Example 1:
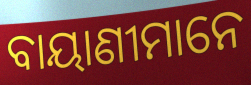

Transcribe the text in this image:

ବାୟାଣୀମାନେ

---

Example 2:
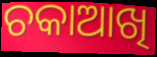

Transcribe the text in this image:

ଚକାଆଖି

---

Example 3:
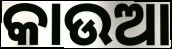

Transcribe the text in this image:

କାଉଆ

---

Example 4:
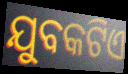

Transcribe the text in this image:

ଯୁବକଟିଏ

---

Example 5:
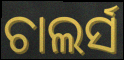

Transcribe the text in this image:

ଚାଲର୍ସ